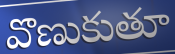
వొణుకుతూ